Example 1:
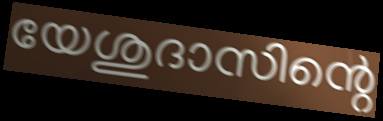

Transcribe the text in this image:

യേശുദാസിന്റെ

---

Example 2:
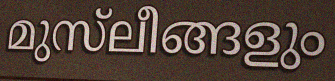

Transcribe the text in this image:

മുസ്‌ലീങ്ങളും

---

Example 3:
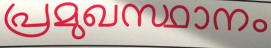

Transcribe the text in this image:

പ്രമുഖസ്ഥാനം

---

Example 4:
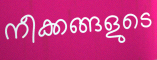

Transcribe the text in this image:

നീക്കങ്ങളുടെ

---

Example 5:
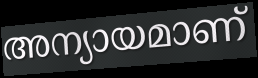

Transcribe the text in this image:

അന്യായമാണ്